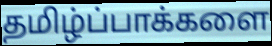
தமிழ்ப்பாக்களை